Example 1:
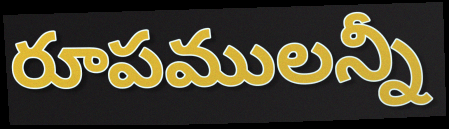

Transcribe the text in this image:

రూపములన్నీ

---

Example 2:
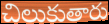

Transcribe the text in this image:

చిలుకుతారు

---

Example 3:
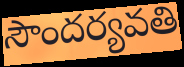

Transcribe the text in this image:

సౌందర్యవతి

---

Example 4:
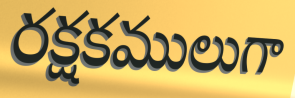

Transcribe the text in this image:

రక్షకములుగా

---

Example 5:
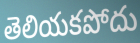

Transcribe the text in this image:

తెలియకపోదు